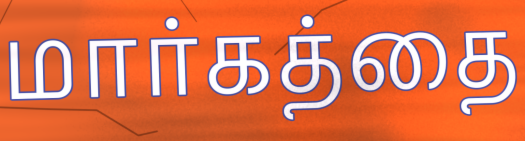
மார்கத்தை